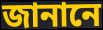
জানানে